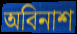
অবিনাশ